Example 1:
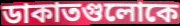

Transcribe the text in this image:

ডাকাতগুলোকে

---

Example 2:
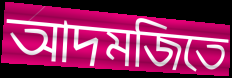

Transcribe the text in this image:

আদমজিতে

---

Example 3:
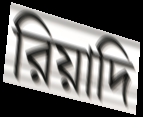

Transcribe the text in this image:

রিয়াদি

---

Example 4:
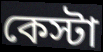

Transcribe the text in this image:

কেস্টা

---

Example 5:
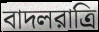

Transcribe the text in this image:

বাদলরাত্রি